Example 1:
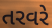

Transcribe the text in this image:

તરવરે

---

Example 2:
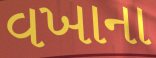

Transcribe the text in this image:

વખાના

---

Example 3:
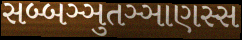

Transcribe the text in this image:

સબ્બઞ્ઞુતઞ્ઞાણસ્સ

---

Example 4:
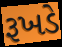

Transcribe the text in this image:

રૂખડે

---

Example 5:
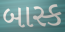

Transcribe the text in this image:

બાસ્ક